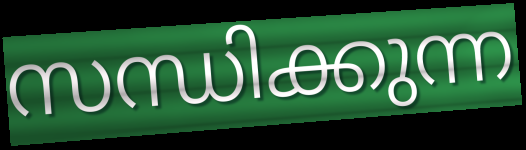
സന്ധിക്കുന്ന